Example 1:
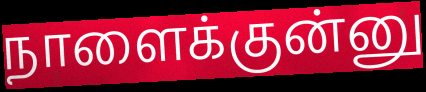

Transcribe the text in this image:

நாளைக்குன்னு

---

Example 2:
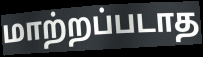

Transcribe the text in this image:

மாற்றப்படாத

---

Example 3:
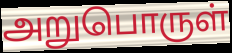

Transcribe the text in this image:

அறுபொருள்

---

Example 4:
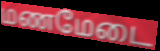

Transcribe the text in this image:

மணமேடை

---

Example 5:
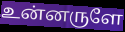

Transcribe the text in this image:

உன்னருளே